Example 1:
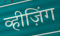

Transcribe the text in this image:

व्हीज़िंग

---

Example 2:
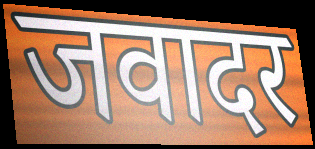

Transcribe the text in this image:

जवादर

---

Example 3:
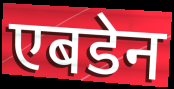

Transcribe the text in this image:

एबडेन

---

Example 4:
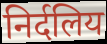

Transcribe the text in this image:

निर्दलिय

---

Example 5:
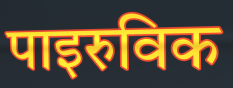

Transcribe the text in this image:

पाइरुविक